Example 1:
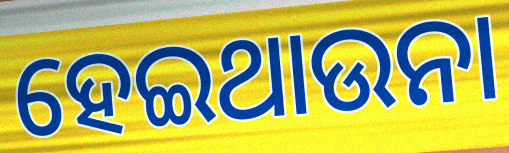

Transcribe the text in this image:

ହେଇଥାଉନା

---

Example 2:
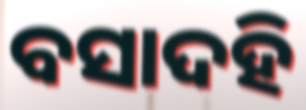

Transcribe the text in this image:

ବସାଦହି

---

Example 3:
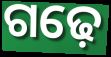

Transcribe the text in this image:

ଗଢ଼େ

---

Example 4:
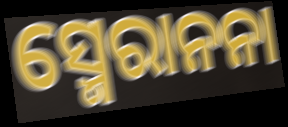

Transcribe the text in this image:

ସ୍ମେରାନନା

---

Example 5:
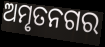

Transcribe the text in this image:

ଅମୃତନଗର